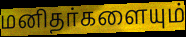
மனிதர்களையும்